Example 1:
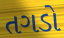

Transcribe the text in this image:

તગડો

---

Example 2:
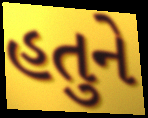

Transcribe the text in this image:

હતુને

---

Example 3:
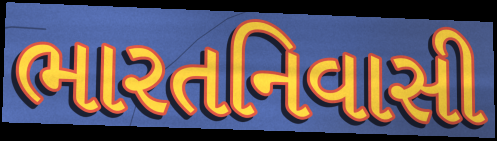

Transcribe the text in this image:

ભારતનિવાસી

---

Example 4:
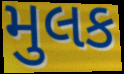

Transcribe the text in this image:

મુલક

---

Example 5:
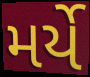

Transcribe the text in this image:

મર્યે